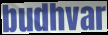
budhvar